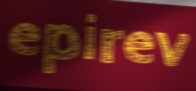
epirev